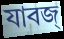
যাবজ্